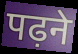
पढ़ने